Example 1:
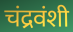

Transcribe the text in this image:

चंद्रवंशी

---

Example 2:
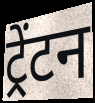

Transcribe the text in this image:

ट्रेंटन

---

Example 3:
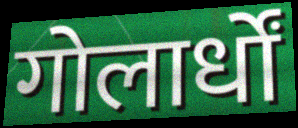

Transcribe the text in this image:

गोलार्धों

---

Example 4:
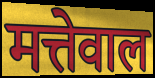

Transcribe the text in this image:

मत्तेवाल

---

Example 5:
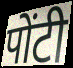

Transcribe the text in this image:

पोंटी